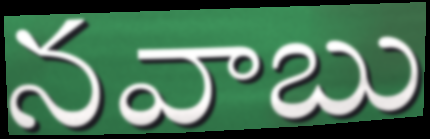
నవాబు